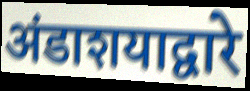
अंडाशयाद्वारे